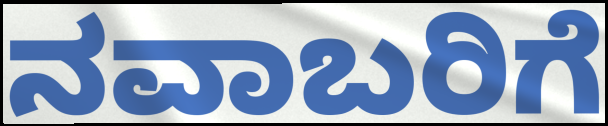
ನವಾಬರಿಗೆ